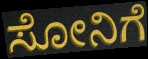
ಸೋನಿಗೆ